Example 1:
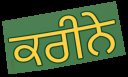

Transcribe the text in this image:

ਕਰੀਨੇ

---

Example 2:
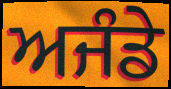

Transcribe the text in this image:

ਅਜੰਡੇ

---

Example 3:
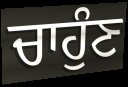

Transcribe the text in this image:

ਚਾਹੁੰਣ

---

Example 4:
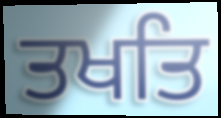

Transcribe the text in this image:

ਤਖਤਿ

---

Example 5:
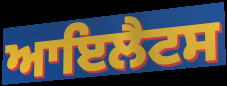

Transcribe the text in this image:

ਆਇਲੈਟਸ